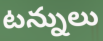
టన్నులు